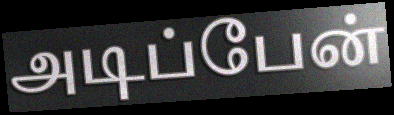
அடிப்பேன்